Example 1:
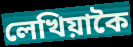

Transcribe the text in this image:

লেখিয়াকৈ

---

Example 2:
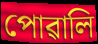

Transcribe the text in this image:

পোৱালি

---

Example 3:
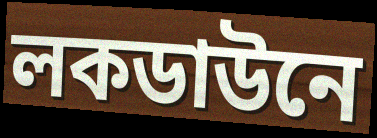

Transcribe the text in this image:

লকডাউনে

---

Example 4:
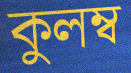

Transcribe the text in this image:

কুলম্ব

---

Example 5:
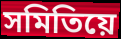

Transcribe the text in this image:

সমিতিয়ে